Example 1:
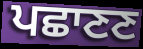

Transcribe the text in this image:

ਪਛਾਣਣ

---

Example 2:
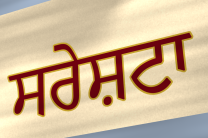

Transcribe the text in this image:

ਸਰੇਸ਼ਟਾ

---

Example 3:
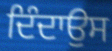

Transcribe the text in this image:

ਦਿੰਦਾਉਸ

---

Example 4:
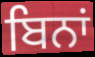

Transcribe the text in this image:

ਬਿਨਾਂ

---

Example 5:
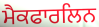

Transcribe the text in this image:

ਮੈਕਫਾਰਲਿਨ